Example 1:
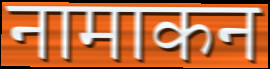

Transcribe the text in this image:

नामाकन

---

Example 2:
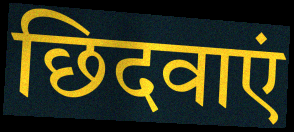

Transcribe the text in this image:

छिदवाएं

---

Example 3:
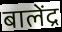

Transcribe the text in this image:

बालेंद्र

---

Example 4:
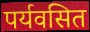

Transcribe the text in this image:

पर्यवसित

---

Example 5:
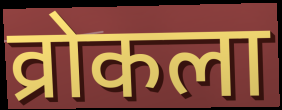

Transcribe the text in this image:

व्रोकला